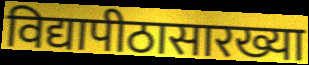
विद्यापीठासारख्या